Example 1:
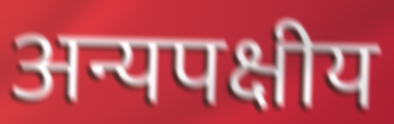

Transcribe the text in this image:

अन्यपक्षीय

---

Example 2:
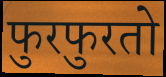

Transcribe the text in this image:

फुरफुरतो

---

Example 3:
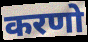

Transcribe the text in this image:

करणो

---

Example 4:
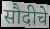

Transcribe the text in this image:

सौदीचे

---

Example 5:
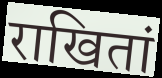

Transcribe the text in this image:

राखितां